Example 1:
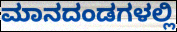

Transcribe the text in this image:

ಮಾನದಂಡಗಳಲ್ಲಿ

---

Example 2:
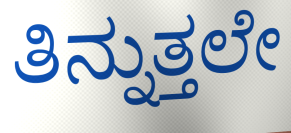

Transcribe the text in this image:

ತಿನ್ನುತ್ತಲೇ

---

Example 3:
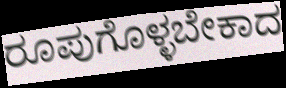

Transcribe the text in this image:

ರೂಪುಗೊಳ್ಳಬೇಕಾದ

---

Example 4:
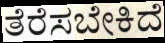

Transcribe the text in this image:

ತೆರೆಸಬೇಕಿದೆ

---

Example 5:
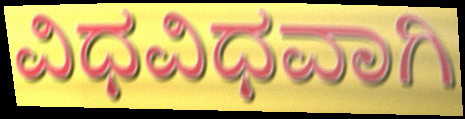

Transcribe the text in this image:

ವಿಧವಿಧವಾಗಿ